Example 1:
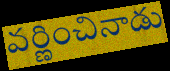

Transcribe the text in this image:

వర్ణించినాడు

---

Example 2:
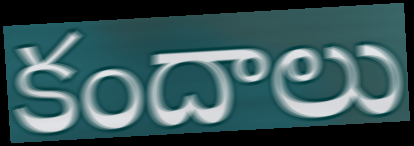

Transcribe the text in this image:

కందాలు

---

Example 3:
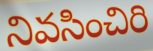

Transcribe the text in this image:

నివసించిరి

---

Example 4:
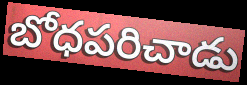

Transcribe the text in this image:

బోధపరిచాడు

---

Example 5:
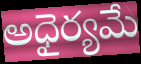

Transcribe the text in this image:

అధైర్యమే